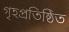
গৃহপ্রতিষ্ঠিত